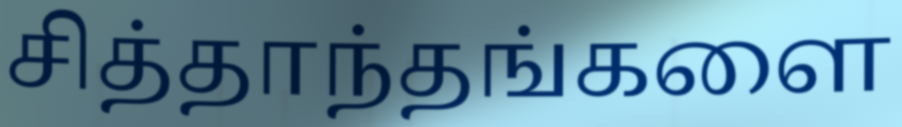
சித்தாந்தங்களை